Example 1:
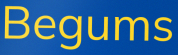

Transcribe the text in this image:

Begums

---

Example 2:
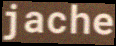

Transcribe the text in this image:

jache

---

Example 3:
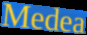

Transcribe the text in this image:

Medea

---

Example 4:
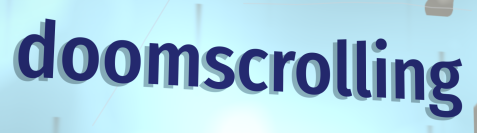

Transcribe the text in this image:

doomscrolling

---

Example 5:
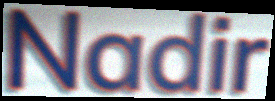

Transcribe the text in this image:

Nadir